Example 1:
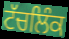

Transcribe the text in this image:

ਟੱਚਲਿੰਕ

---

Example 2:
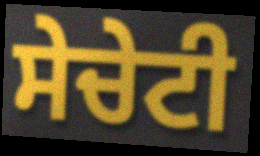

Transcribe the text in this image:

ਸੇਚੇਟੀ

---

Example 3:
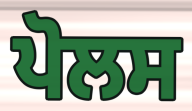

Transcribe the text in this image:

ਪੋਲਸ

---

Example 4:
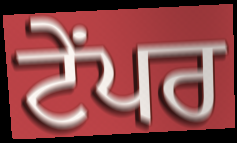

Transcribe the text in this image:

ਟੇਂਪਰ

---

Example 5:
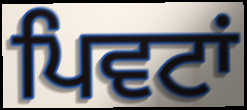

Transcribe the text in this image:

ਪਿਵਟਾਂ